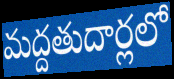
మద్దతుదార్లలో